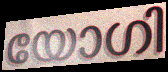
യോഗി